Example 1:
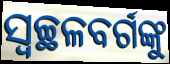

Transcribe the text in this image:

ସ୍ବଚ୍ଛଳବର୍ଗଙ୍କୁ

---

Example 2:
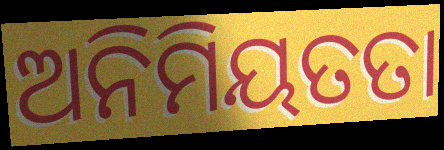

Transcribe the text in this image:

ଅନିମିୟତତା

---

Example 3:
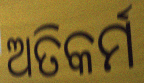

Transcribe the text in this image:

ଅତିକର୍ମ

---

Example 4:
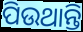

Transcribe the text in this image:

ପିଉଥାନ୍ତି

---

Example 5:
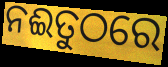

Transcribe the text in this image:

ନଈତୁଠରେ